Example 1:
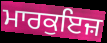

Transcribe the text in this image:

ਮਾਰਕੁਇਜ਼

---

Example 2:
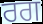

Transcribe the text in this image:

ਰਗ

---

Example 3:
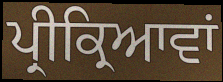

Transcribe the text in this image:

ਪ੍ਰੀਕ੍ਰਿਆਵਾਂ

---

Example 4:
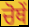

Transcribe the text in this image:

ਚੋਥੇਂ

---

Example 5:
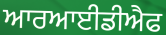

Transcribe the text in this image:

ਆਰਆਈਡੀਐਫ